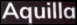
Aquilla